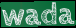
wada